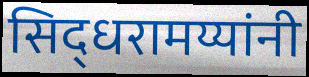
सिद्धरामय्यांनी